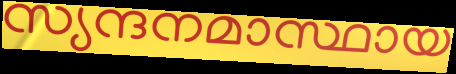
സ്യന്ദനമാസ്ഥായ